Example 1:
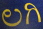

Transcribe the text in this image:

ಲಗಿ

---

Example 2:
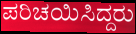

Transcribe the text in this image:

ಪರಿಚಯಿಸಿದ್ದರು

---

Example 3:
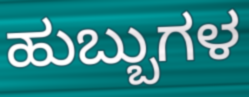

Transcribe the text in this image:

ಹುಬ್ಬುಗಳ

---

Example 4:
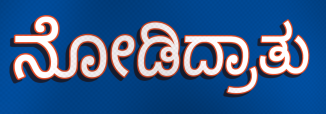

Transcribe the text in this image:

ನೋಡಿದ್ರಾತು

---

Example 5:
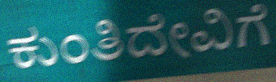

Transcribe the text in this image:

ಕುಂತಿದೇವಿಗೆ